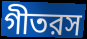
গীতরস